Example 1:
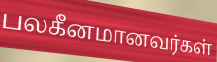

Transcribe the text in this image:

பலகீனமானவர்கள்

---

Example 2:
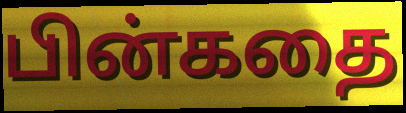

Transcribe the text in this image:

பின்கதை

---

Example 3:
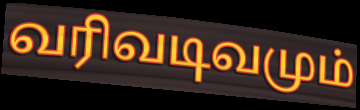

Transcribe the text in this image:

வரிவடிவமும்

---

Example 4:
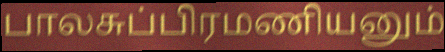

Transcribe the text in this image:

பாலசுப்பிரமணியனும்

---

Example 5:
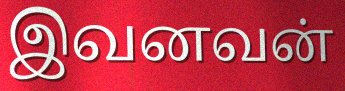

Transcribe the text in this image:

இவனவன்